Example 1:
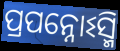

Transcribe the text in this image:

ପ୍ରପନ୍ନୋଽସ୍ମି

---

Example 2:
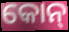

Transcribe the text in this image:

କୋନ୍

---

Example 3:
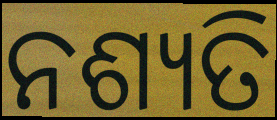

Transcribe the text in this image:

ନଶ୍ୟତି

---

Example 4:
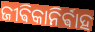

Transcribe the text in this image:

ଜୀଵିକାନିର୍ଵାହ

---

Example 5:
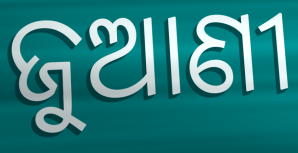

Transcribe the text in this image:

ଜୁଆଣୀ